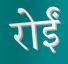
रोईं